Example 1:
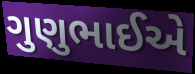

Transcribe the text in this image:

ગુણુભાઈએ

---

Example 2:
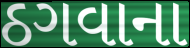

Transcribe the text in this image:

ઠગવાના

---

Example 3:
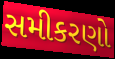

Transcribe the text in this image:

સમીકરણો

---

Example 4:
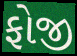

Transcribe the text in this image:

ફોજી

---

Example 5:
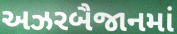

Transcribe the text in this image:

અઝરબૈજાનમાં